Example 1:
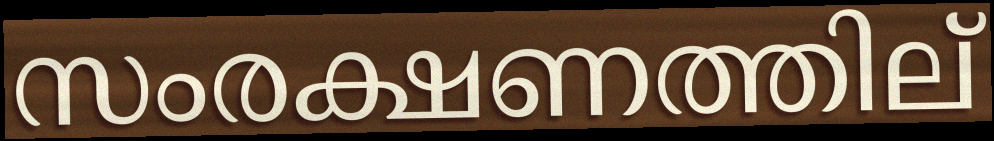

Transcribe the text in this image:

സംരക്ഷണത്തില്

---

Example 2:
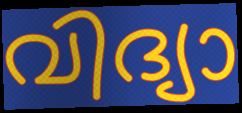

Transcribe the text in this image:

വിദ്യാ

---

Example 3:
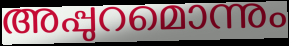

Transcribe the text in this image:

അപ്പുറമൊന്നും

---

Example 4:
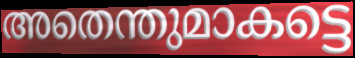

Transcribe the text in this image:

അതെന്തുമാകട്ടെ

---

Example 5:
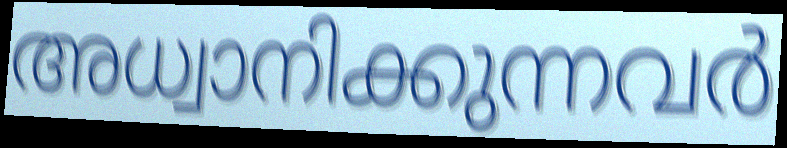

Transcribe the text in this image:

അധ്വാനിക്കുന്നവർ